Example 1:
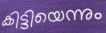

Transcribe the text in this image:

കിട്ടിയെന്നും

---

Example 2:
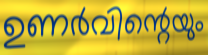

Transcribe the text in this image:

ഉണർവിന്റെയും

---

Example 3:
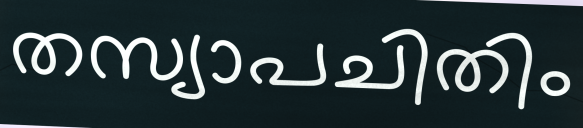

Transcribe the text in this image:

തസ്യാപചിതിം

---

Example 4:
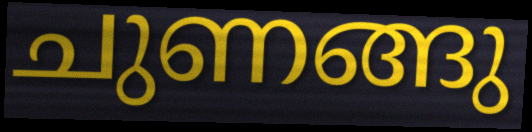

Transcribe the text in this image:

ചുണങ്ങു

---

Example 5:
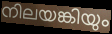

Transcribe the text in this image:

നിലയങ്കിയും